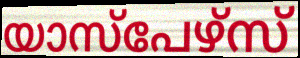
യാസ്പേഴ്സ്